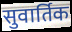
सुवार्तिक